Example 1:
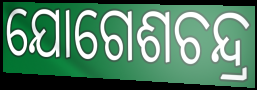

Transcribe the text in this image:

ଯୋଗେଶଚନ୍ଦ୍ର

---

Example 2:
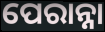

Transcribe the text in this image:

ପେରାନ୍ନା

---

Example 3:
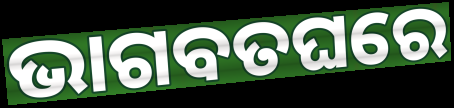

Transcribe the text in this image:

ଭାଗବତଘରେ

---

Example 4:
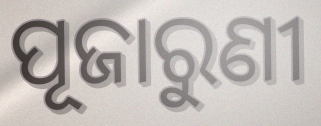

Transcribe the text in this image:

ପୂଜାରୁଣୀ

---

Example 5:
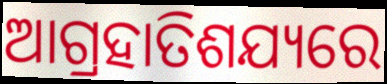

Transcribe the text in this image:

ଆଗ୍ରହାତିଶଯ୍ୟରେ